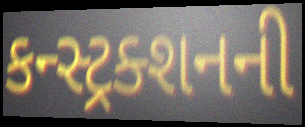
કન્સ્ટ્રક્શનની